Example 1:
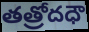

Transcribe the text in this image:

తత్రోదధౌ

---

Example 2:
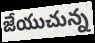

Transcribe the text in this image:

జేయుచున్న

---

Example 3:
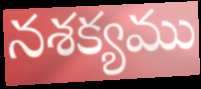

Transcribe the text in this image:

నశక్యము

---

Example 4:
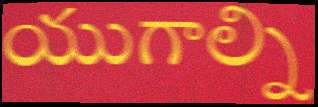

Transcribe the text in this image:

యుగాల్ని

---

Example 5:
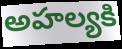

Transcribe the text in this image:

అహల్యకి